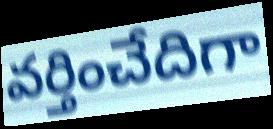
వర్తించేదిగా